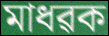
মাধৱক